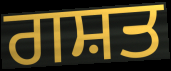
ਗਸ਼ਤ